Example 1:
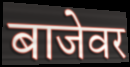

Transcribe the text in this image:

बाजेवर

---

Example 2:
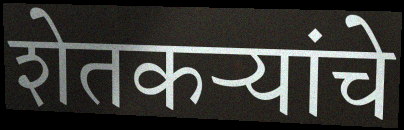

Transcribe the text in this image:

शेतकऱ्यांचे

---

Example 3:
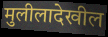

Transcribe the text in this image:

मुलीलादेखील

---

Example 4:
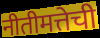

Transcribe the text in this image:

नीतीमत्तेची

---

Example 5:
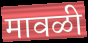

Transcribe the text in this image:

मावळी